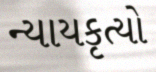
ન્યાયકૃત્યો